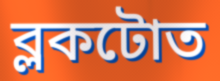
ব্লকটোত